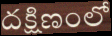
దక్షిణంలో